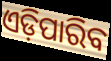
ଏଡ଼ିପାରିବ